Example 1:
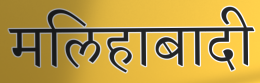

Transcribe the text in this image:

मलिहाबादी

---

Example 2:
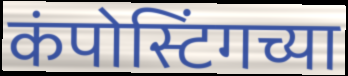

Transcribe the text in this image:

कंपोस्टिंगच्या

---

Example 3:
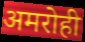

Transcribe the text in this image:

अमरोही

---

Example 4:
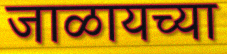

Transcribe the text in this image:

जाळायच्या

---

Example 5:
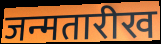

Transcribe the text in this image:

जन्मतारीख